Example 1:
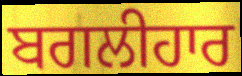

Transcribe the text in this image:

ਬਗਲੀਹਾਰ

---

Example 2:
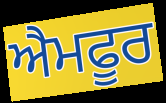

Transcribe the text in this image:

ਐਮਫੂਰ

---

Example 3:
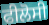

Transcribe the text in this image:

ਫੀਲੋਸੀ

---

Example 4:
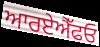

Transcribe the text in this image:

ਆਰਏਐੱਫਓ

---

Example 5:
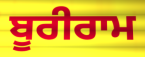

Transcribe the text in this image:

ਬੂਰੀਰਾਮ